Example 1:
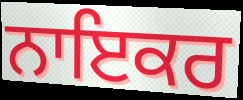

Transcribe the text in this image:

ਨਾਇਕਰ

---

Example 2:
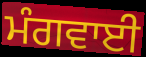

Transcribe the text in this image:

ਮੰਗਵਾਈ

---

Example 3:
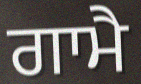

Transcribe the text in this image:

ਗਾਮੈ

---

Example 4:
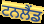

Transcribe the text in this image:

ਟਨਲੈਂਡ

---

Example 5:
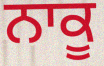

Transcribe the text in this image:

ਨਾਕੂ